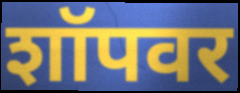
शॉपवर